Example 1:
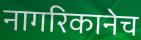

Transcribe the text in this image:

नागरिकानेच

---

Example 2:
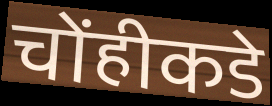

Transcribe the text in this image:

चोंहीकडे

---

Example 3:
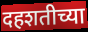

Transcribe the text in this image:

दहशतीच्या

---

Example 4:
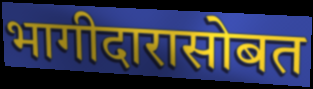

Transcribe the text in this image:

भागीदारासोबत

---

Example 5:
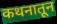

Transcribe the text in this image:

कथनातून